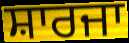
ਸ਼ਾਰਜਾ